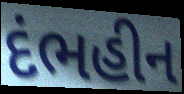
દંભહીન